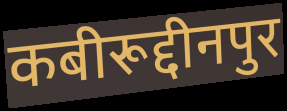
कबीरूद्दीनपुर